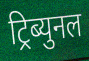
ट्रिब्युनल